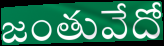
జంతువేదో